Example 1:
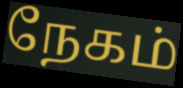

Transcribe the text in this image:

நேகம்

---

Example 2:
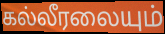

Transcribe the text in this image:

கல்லீரலையும்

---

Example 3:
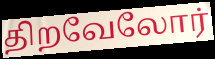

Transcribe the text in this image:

திறவேலோர்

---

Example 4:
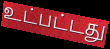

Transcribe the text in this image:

உட்பட்டது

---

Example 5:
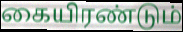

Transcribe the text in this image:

கையிரண்டும்